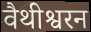
वैथीश्वरन